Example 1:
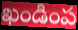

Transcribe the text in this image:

ఖండింప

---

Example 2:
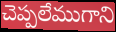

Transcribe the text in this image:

చెప్పలేముగాని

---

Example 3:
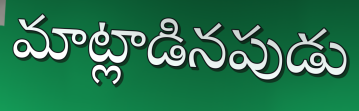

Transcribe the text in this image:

మాట్లాడినపుడు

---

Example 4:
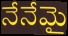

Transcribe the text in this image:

నేనేమై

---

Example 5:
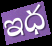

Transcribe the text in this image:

ఇధ